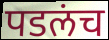
पडलंच